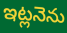
ఇట్లనెను